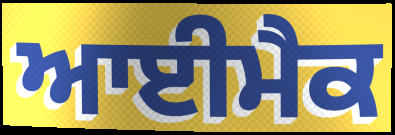
ਆਈਮੈਕ